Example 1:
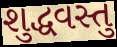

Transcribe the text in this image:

શુદ્ધવસ્તુ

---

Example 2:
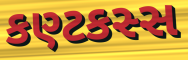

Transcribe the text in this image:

કણ્ટકસ્સ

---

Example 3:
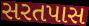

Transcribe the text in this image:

સરતપાસ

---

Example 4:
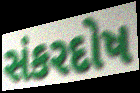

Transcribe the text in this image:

સંકરદોષ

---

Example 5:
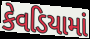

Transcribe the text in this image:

કેવડિયામાં